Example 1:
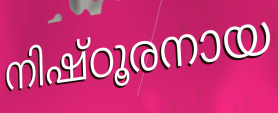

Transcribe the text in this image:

നിഷ്ഠൂരനായ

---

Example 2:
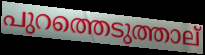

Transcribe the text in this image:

പുറത്തെടുത്താല്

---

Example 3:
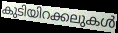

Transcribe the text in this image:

കുടിയിറക്കലുകൾ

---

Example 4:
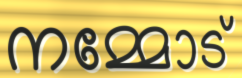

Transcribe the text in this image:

നമ്മോട്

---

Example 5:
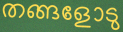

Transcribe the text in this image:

തങ്ങളോടു